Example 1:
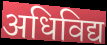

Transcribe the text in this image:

अधिविद्य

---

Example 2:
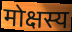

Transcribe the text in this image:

मोक्षस्य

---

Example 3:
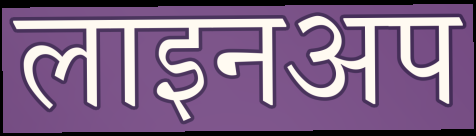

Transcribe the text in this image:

लाइनअप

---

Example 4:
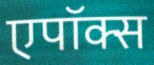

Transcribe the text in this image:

एपॉक्स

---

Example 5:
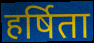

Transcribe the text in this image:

हर्षिता